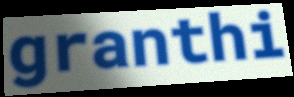
granthi